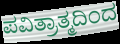
ಪವಿತ್ರಾತ್ಮದಿಂದ